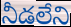
నీడలేని